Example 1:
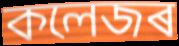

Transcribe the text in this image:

কলেজৰ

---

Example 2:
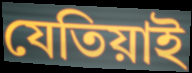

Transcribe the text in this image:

যেতিয়াই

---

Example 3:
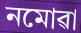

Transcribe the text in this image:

নমোৱা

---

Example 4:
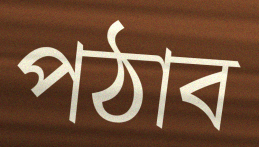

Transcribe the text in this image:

পঠাব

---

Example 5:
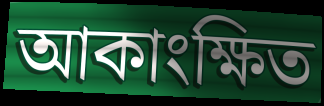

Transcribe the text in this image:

আকাংক্ষিত